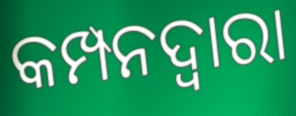
କମ୍ପନଦ୍ୱାରା